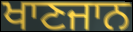
ਖਾਣਜਾਨ